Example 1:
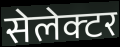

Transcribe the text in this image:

सेलेक्‍टर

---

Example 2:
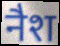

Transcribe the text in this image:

नैश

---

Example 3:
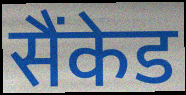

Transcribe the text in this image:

सैंकेड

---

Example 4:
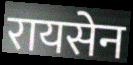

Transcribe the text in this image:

रायसेन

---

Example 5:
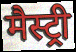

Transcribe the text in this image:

मैस्ट्री